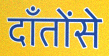
दाँतोंसे